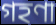
গহণা